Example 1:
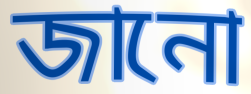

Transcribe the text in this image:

জানো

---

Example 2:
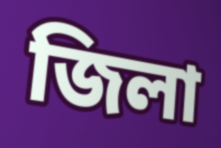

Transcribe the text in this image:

জিলা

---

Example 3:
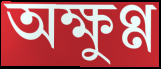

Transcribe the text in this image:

অক্ষুণ্ণ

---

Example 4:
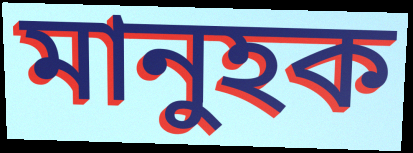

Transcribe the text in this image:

মানুহক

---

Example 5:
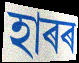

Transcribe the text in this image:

হাৰৰ